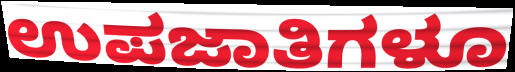
ಉಪಜಾತಿಗಳೂ